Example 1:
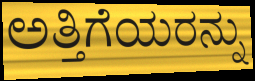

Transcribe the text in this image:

ಅತ್ತಿಗೆಯರನ್ನು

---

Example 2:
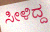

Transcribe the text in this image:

ಸೀಳಿದ್ದ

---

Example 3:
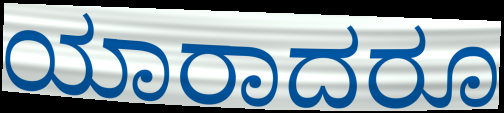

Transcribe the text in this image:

ಯಾರಾದರೂ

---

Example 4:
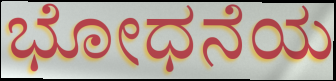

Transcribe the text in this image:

ಭೋಧನೆಯ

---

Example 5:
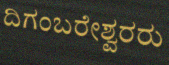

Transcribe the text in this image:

ದಿಗಂಬರೇಶ್ವರರು